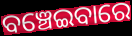
ବଞ୍ଚେଇବାରେ